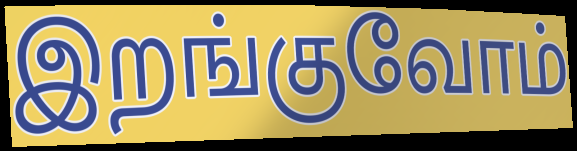
இறங்குவோம்